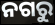
ନଗରୁ